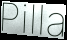
Pilla